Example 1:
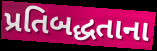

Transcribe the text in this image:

પ્રતિબદ્ધતાના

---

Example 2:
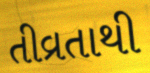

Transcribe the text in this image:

તીવ્રતાથી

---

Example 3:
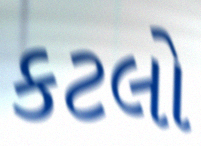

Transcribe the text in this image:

કટલો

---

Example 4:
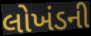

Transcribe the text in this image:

લોખંડની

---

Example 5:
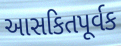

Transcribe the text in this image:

આસકિતપૂર્વક